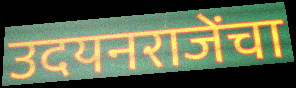
उदयनराजेंचा